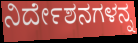
ನಿರ್ದೇಶನಗಳನ್ನ